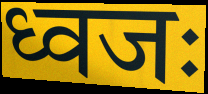
ध्वजः